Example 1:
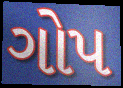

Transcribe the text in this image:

ગોપ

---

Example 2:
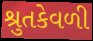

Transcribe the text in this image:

શ્રુતકેવળી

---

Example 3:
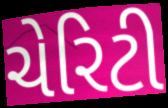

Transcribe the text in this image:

ચેરિટી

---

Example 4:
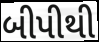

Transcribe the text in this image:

બીપીથી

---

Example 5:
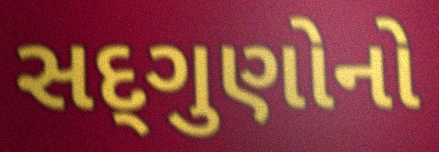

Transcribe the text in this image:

સદ્‌ગુણોનો